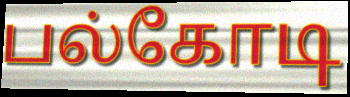
பல்கோடி